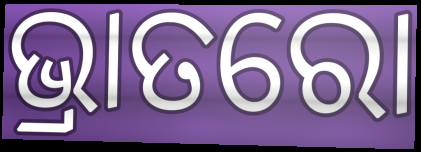
ଭ୍ରାତରୋ